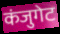
कंजुगेट